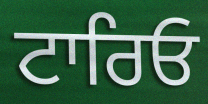
ਟਾਰਿਓ